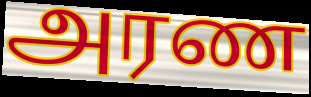
அரண